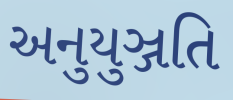
અનુયુઞ્જતિ